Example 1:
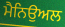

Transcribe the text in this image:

ਮੈਨਿਉਅਲ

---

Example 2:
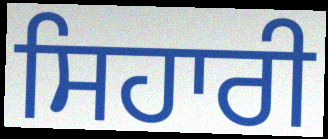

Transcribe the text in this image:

ਸਿਹਾਰੀ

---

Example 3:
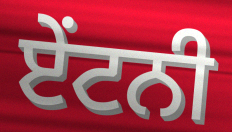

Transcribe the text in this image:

ਏਂਟਨੀ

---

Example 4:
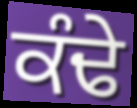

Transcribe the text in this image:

ਕੰਢੇ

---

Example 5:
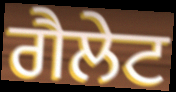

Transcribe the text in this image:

ਗੈਲੇਟ